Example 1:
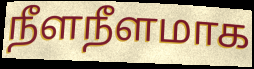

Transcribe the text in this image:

நீளநீளமாக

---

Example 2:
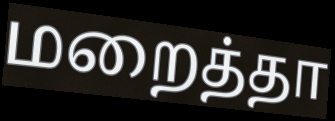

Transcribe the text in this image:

மறைத்தா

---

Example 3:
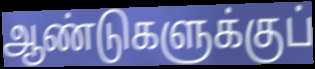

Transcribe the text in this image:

ஆண்டுகளுக்குப்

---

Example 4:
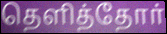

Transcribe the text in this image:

தெளித்தோர்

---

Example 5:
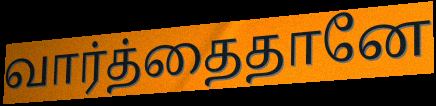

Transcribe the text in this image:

வார்த்தைதானே